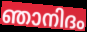
ഞാനിദം